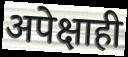
अपेक्षाही